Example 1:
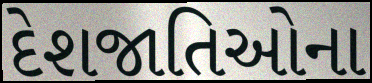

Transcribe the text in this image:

દેશજાતિઓના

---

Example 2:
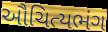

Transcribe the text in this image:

ઔચિત્યભંગ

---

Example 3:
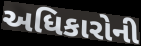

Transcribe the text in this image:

અધિકારોની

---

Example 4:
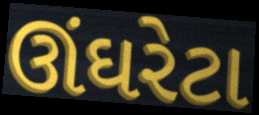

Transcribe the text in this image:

ઊંઘરેટા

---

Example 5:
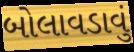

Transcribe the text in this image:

બોલાવડાવું